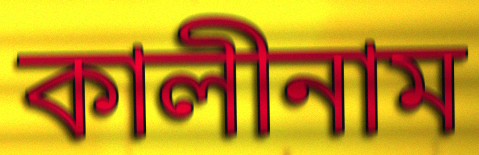
কালীনাম